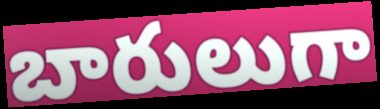
బారులుగా